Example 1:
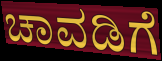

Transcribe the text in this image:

ಚಾವಡಿಗೆ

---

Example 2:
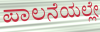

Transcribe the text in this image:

ಪಾಲನೆಯಲ್ಲೇ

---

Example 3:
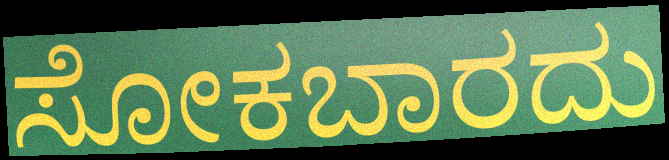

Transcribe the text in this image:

ಸೋಕಬಾರದು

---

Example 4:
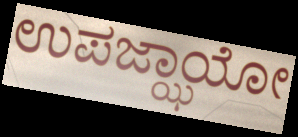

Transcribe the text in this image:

ಉಪಜ್ಝಾಯೋ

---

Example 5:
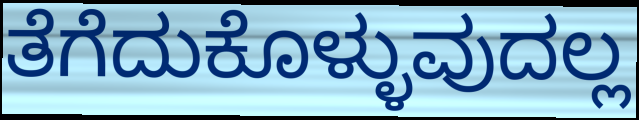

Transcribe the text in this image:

ತೆಗೆದುಕೊಳ್ಳುವುದಲ್ಲ